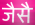
जैसै